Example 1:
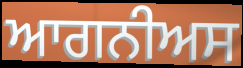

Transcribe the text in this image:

ਆਗਨੀਅਸ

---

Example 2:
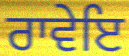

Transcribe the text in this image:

ਰਾਵੇਇ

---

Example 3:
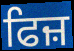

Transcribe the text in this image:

ਫਿਜ਼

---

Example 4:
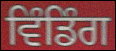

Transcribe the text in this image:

ਵਿੰਡਿੰਗ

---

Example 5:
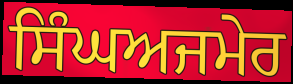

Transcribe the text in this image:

ਸਿੰਘਅਜਮੇਰ